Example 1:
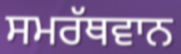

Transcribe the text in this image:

ਸਮਰੱਥਵਾਨ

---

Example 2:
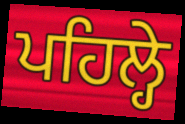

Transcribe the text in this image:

ਪਹਿਲ੍ਹੇ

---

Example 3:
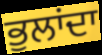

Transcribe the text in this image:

ਭੁਲਾਂਦਾ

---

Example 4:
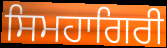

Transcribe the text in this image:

ਸਿਮਹਾਗਿਰੀ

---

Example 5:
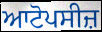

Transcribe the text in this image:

ਆਟੋਪਸੀਜ਼